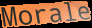
Morale